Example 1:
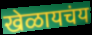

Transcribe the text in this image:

खेळायचंय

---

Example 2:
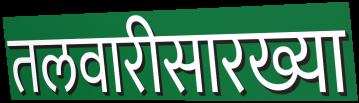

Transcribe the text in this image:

तलवारीसारख्या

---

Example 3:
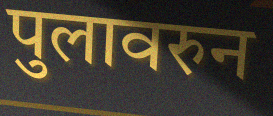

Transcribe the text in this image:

पुलावरुन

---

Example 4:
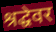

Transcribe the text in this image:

श्रद्धेवर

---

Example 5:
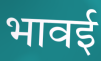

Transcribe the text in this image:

भावई